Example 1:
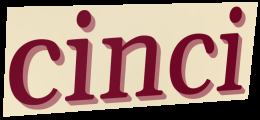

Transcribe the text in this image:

cinci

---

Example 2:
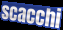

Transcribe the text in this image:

scacchi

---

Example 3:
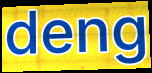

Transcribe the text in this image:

deng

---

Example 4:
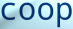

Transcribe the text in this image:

coop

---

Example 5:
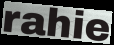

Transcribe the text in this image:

rahie